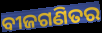
ବୀଜଗଣିତର